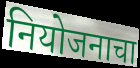
नियोजनाचा